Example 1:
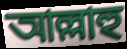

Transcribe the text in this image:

আল্লাহু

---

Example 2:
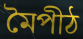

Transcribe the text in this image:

মৈপীঠ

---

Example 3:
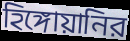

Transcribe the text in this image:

হিঙ্গোয়ানির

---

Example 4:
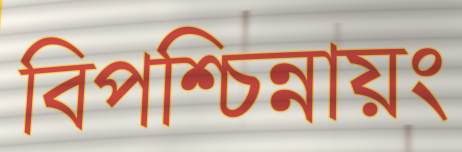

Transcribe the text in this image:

বিপশ্চিন্নায়ং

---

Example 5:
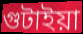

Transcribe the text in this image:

গুটাইয়া